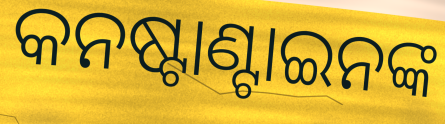
କନଷ୍ଟାଣ୍ଟାଇନଙ୍କ